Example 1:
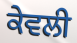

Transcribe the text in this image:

ਕੇਵਲੀ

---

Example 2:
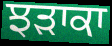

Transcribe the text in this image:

ਝੜਾਕਾ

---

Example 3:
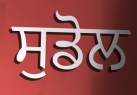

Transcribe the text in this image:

ਸੁਡੋਲ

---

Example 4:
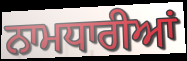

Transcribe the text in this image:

ਨਾਮਧਾਰੀਆਂ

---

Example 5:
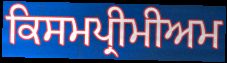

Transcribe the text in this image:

ਕਿਸਮਪ੍ਰੀਮੀਅਮ